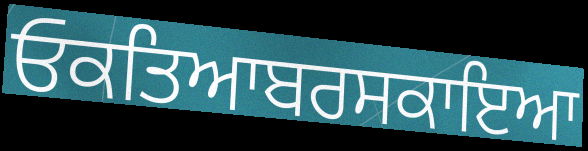
ਓਕਤਿਆਬਰਸਕਾਇਆ